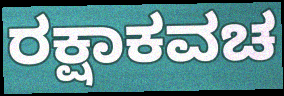
ರಕ್ಷಾಕವಚ